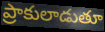
ప్రాకులాడుతూ